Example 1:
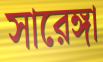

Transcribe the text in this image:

সারেঙ্গা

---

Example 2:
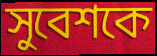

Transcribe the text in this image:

সুবেশকে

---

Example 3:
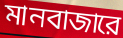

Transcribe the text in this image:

মানবাজারে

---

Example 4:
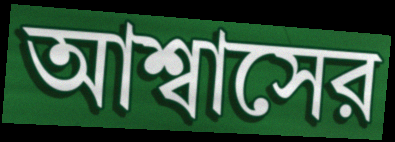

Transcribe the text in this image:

আশ্বাসের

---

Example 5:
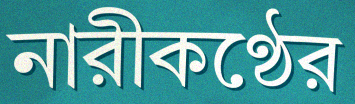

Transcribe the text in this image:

নারীকণ্ঠের